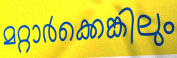
മറ്റാർക്കെങ്കിലും